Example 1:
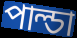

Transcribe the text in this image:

পাল্ডা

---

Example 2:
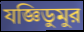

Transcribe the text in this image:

যজ্ঞিডুমুর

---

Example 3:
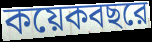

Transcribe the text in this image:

কয়েকবছরে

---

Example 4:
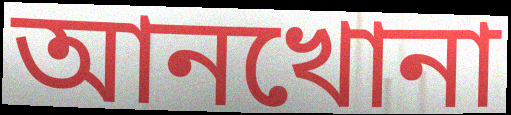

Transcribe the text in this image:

আনখোনা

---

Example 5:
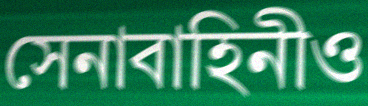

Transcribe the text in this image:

সেনাবাহিনীও